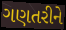
ગણતરીને